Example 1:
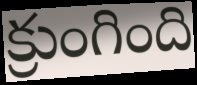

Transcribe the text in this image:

క్రుంగింది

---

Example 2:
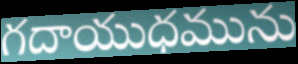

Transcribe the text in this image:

గదాయుధమును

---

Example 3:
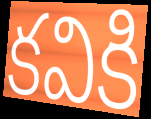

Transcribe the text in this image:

కవికి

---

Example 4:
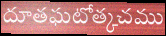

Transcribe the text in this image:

దూతఘటోత్కచము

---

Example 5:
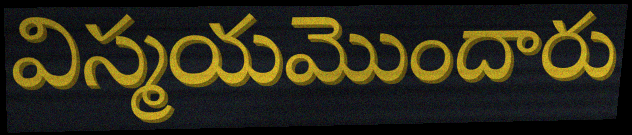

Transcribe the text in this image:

విస్మయమొందారు